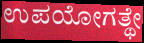
ಉಪಯೋಗತ್ಥೇ